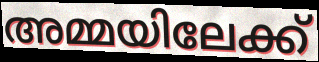
അമ്മയിലേക്ക്